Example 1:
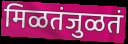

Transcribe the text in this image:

मिळतंजुळतं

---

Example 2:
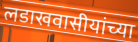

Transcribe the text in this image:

लडाखवासीयांच्या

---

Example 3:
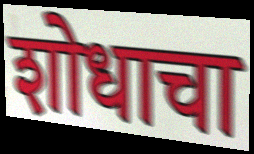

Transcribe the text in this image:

शोधाचा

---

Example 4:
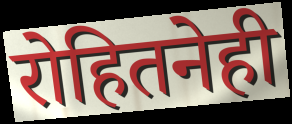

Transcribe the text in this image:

रोहितनेही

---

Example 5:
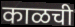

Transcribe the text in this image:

काळची